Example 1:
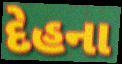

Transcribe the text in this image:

દેહના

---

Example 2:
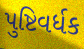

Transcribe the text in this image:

પુષ્ટિવર્ધક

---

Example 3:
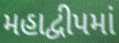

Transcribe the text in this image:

મહાદ્વીપમાં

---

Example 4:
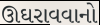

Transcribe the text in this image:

ઊઘરાવવાનો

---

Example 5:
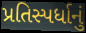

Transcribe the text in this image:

પ્રતિસ્પર્ધાનું